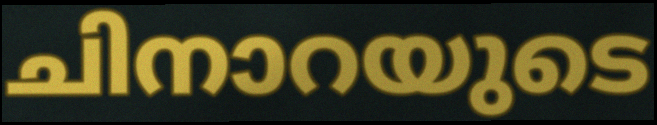
ചിനാറയുടെ